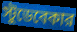
স্টুডেবেকার